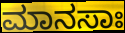
ಮಾನಸಾಃ